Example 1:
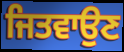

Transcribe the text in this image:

ਜਿਤਵਾਉਣ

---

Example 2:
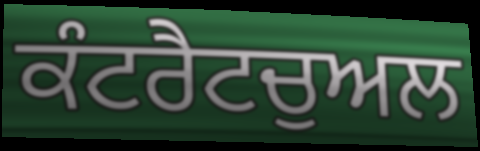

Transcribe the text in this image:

ਕੰਟਰੈਟਚੁਅਲ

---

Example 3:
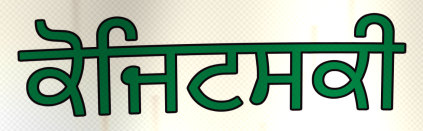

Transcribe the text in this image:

ਕੋਜਿਟਸਕੀ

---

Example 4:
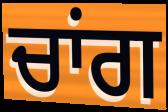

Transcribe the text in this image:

ਚਾਂਗ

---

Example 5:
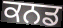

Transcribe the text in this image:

ਕਨਡ